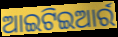
ଆଇଟିଇଆର୍ର